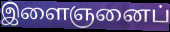
இளைஞனைப்